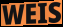
WEIS